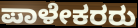
ಪಾಳೇಕರರು